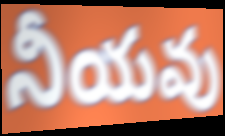
నీయవు